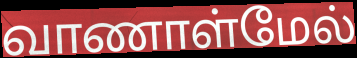
வாணாள்மேல்